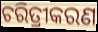
ଚରିତ୍ରୀକରଣ